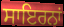
ਸਾਇਰਨਾਂ